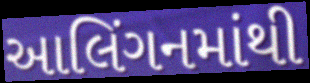
આલિંગનમાંથી